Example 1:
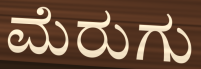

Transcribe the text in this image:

ಮೆರುಗು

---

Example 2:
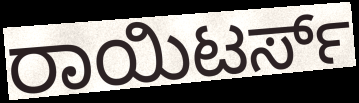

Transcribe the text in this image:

ರಾಯಿಟರ್ಸ್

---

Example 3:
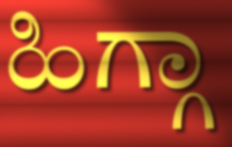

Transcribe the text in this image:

ಹಿಗ್ಗಾ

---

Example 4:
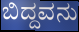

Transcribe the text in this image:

ಬಿದ್ದವನು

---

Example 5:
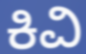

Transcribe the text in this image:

ಕಿವಿ